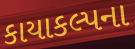
કાયાકલ્પના